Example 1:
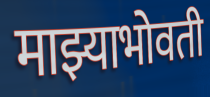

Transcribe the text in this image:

माझ्याभोवती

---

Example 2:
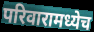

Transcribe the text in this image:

परिवारामध्येच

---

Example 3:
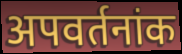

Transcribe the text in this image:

अपवर्तनांक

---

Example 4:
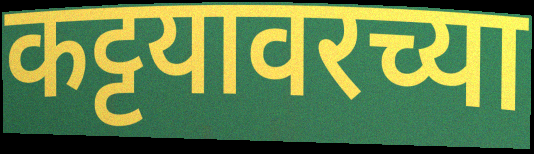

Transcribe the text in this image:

कट्टयावरच्या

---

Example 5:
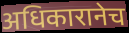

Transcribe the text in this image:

अधिकारानेच